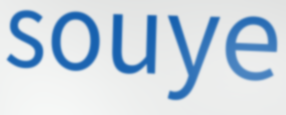
souye